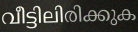
വീട്ടിലിരിക്കുക